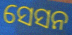
ସେସନ